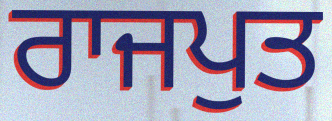
ਰਾਜਪੁਤ